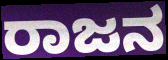
ರಾಜನ